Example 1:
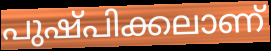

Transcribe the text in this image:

പുഷ്പിക്കലാണ്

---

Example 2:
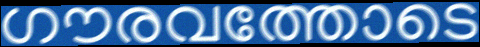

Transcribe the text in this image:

ഗൗരവത്തോടെ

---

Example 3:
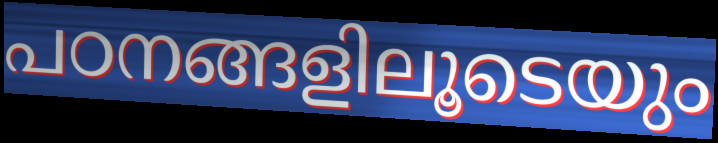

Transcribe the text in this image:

പഠനങ്ങളിലൂടെയും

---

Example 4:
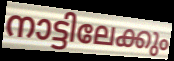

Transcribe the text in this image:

നാട്ടിലേക്കും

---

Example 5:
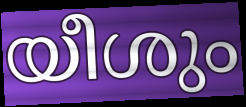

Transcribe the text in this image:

യീശും